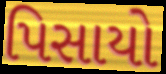
પિસાયો